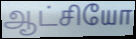
ஆட்சியோ